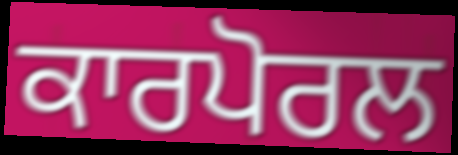
ਕਾਰਪੋਰਲ